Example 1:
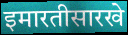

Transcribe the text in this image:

इमारतीसारखे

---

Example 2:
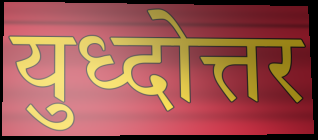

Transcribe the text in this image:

युध्दोत्तर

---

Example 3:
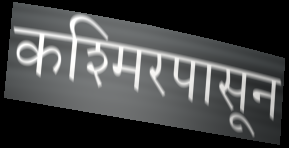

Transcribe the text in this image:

कश्मिरपासून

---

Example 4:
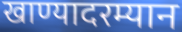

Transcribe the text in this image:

खाण्यादरम्यान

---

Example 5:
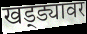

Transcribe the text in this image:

खड्ड्यावर